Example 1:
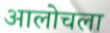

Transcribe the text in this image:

आलोचला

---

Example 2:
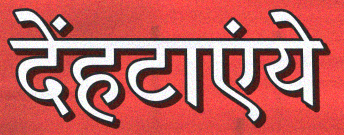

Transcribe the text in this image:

देंहटाएंये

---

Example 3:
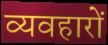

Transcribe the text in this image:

व्यवहारों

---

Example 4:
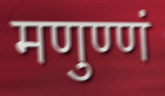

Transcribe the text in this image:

मणुण्णं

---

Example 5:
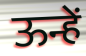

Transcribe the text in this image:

ऊन्हें